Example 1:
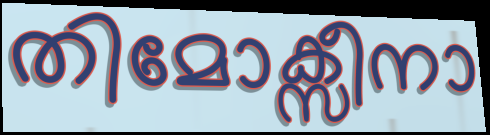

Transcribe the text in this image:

തിമോക്സീനാ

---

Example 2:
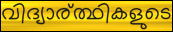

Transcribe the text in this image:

വിദ്യാര്ത്ഥികളുടെ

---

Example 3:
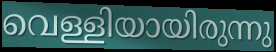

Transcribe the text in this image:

വെള്ളിയായിരുന്നു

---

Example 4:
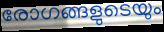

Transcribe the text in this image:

രോഗങ്ങളുടെയും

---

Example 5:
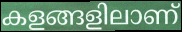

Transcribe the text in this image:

കളങ്ങളിലാണ്